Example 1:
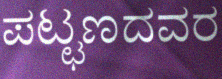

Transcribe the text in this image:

ಪಟ್ಟಣದವರ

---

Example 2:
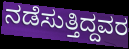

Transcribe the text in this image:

ನಡೆಸುತ್ತಿದ್ದವರ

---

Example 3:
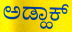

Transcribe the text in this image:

ಅಡ್ಹಾಕ್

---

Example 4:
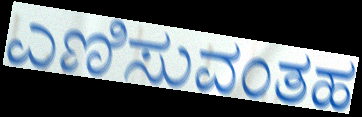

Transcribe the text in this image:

ಎಣಿಸುವಂತಹ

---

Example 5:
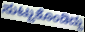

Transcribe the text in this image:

ಸುಟ್ಟುಕೊಂಡಿದ್ದು